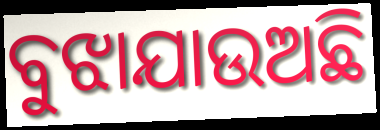
ବୁଝାଯାଉଅଛି